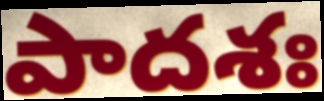
పాదశః